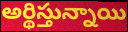
అర్థిస్తున్నాయి